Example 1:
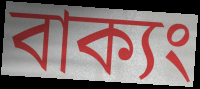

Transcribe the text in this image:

বাক্যং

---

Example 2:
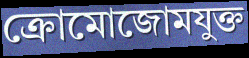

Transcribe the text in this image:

ক্রোমোজোমযুক্ত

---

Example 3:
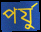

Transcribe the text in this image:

পর্যু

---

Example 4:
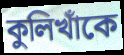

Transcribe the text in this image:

কুলিখাঁকে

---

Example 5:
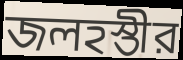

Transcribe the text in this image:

জলহস্তীর